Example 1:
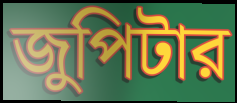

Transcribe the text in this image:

জুপিটার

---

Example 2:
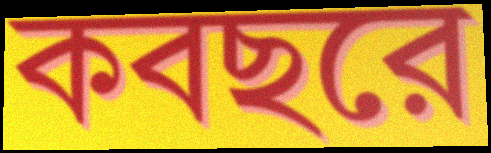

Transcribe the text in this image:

কবছরে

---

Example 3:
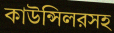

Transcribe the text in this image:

কাউন্সিলরসহ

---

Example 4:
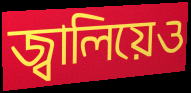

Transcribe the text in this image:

জ্বালিয়েও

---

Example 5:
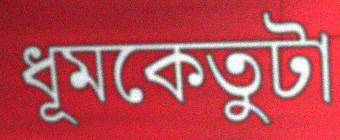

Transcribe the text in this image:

ধূমকেতুটা